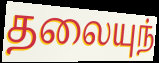
தலையுந்